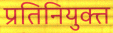
प्रतिनियुक्त